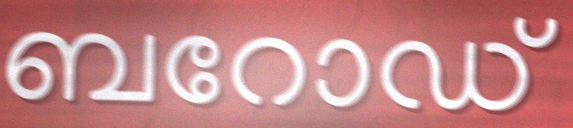
ബറോഡ്